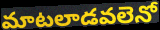
మాటలాడవలెనో